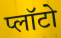
प्लॉटो